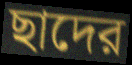
ছাদের